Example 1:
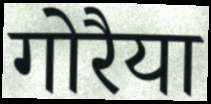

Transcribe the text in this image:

गोरैया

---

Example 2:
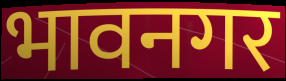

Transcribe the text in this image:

भावनगर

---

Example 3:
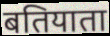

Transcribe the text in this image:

बतियाता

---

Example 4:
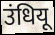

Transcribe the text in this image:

उंधियू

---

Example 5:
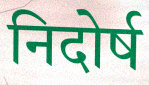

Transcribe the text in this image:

निदोर्ष